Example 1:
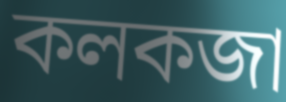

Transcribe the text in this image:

কলকজা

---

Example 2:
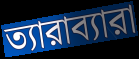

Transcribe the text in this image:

ত্যারাব্যারা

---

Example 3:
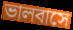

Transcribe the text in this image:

ভালবাসে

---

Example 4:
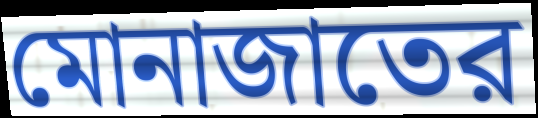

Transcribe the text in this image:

মোনাজাতের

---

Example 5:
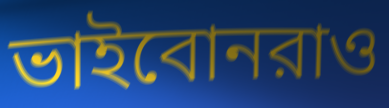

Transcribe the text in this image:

ভাইবোনরাও